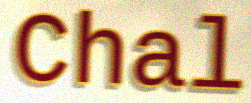
Chal